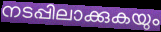
നടപ്പിലാക്കുകയും